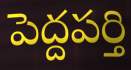
పెద్దపర్తి